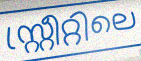
സ്റ്റ്രീറ്റിലെ